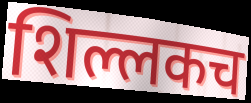
शिल्लकच